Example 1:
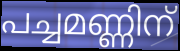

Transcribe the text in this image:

പച്ചമണ്ണിന്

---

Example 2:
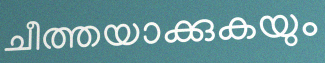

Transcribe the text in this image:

ചീത്തയാക്കുകയും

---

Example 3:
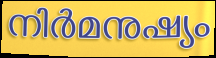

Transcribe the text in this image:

നിർമനുഷ്യം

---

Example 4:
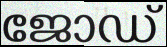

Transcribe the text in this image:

ജോഡ്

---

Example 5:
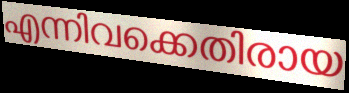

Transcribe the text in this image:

എന്നിവക്കെതിരായ